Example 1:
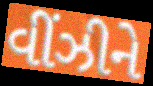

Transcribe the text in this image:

વીંઝીને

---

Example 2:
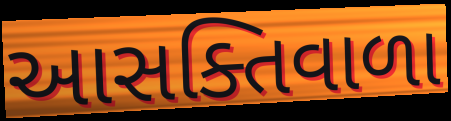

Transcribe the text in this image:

આસક્તિવાળા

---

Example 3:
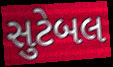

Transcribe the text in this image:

સુટેબલ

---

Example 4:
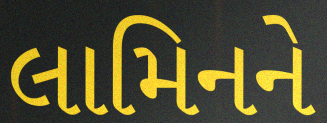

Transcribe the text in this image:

લામિનને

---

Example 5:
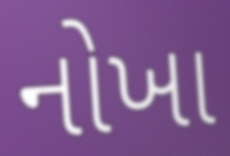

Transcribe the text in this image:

નોખા